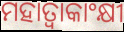
ମହାତ୍ୱାକାଂକ୍ଷୀ